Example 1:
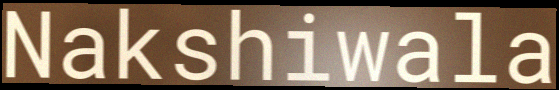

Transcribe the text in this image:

Nakshiwala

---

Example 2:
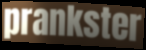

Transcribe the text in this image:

prankster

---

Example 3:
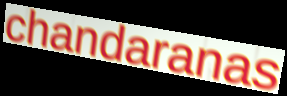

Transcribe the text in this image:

chandaranas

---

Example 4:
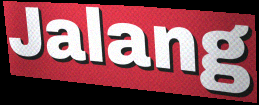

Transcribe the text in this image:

Jalang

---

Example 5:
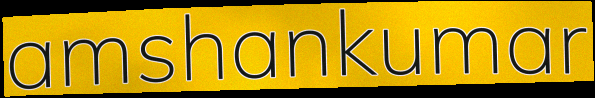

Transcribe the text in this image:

amshankumar